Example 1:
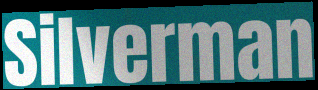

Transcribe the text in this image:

Silverman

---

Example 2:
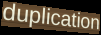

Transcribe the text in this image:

duplication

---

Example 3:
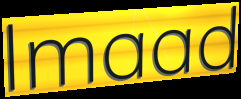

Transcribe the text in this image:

Imaad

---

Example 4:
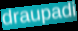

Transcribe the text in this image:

draupadi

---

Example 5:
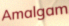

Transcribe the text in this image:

Amalgam